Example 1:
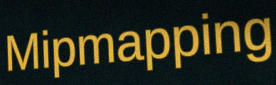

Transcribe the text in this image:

Mipmapping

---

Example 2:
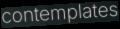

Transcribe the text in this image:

contemplates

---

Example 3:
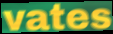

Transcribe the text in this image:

vates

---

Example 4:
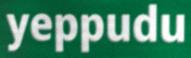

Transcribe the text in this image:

yeppudu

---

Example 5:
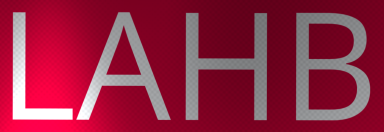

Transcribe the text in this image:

LAHB